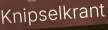
Knipselkrant